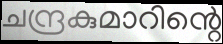
ചന്ദ്രകുമാറിന്റെ